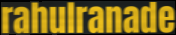
rahulranade